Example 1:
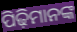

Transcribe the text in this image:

ପିଢ଼ିମାନଙ୍କ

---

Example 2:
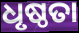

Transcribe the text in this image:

ଧୃଷ୍ଠତା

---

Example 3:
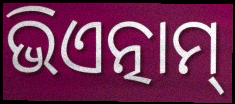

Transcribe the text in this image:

ଭିଏତ୍ନାମ୍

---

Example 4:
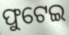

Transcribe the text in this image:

ଫୁଟେଇ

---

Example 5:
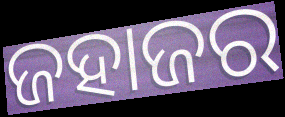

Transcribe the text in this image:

ଜହାଜର